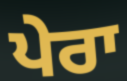
ਪੇਰਾ